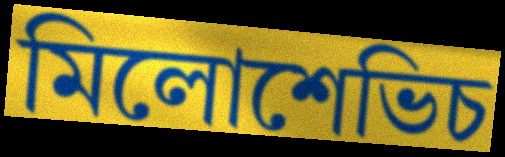
মিলোশেভিচ